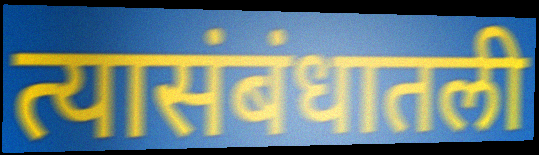
त्यासंबंधातली